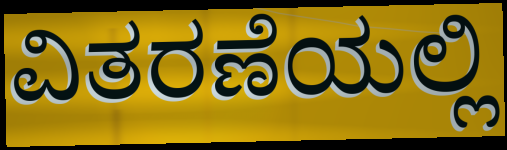
ವಿತರಣೆಯಲ್ಲಿ